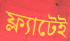
ফ্ল্যাটেই